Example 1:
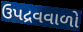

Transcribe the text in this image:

ઉપદ્રવવાળો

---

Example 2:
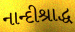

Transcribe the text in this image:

નાન્દીશ્રાદ્ધ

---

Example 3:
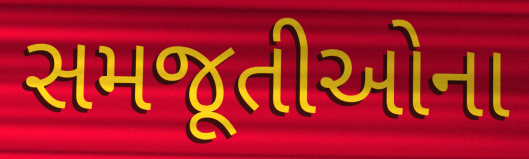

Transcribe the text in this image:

સમજૂતીઓના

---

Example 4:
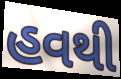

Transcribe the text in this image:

હવથી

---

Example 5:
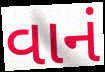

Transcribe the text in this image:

વાનં